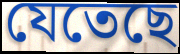
যেতেছে